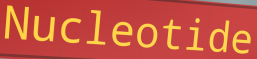
Nucleotide